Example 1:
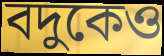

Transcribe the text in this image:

বদুকেও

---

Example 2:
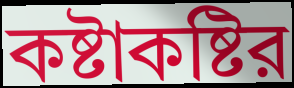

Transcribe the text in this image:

কষ্টাকষ্টির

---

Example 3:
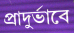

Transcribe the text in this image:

প্রাদুর্ভাবে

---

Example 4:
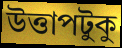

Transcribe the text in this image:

উত্তাপটুকু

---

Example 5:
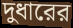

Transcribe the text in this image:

দুধারের